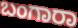
ಬಂಗಾರಾ